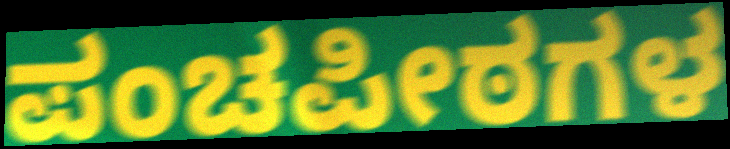
ಪಂಚಪೀಠಗಳ